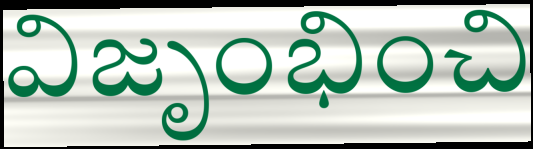
విజృంభించి